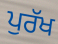
ਪੁਰੱਖ